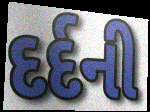
દર્દની